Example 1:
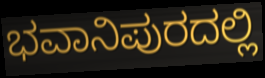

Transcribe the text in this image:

ಭವಾನಿಪುರದಲ್ಲಿ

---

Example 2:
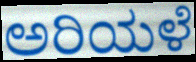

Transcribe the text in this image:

ಅರಿಯಳೆ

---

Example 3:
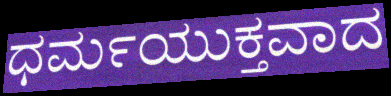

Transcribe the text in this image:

ಧರ್ಮಯುಕ್ತವಾದ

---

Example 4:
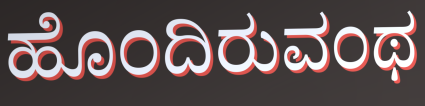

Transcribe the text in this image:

ಹೊಂದಿರುವಂಥ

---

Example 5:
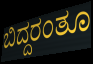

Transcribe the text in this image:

ಬಿದ್ದರಂತೂ